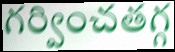
గర్వించతగ్గ